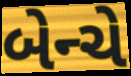
બેન્ચે